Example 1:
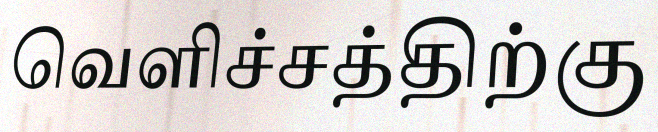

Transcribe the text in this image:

வெளிச்சத்திற்கு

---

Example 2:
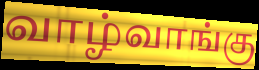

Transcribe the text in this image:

வாழ்வாங்கு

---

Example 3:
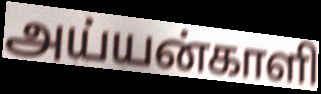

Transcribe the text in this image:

அய்யன்காளி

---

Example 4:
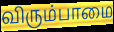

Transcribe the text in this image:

விரும்பாமை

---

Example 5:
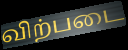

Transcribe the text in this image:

விற்படை